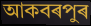
আকবৰপুৰ